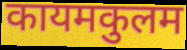
कायमकुलम